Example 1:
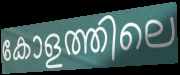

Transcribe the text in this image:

കോളത്തിലെ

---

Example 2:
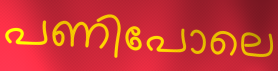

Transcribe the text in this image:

പണിപോലെ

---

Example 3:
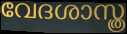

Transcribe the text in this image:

വേദശാസ്ത്ര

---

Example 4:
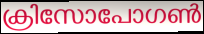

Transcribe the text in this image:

ക്രിസോപോഗൺ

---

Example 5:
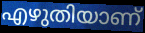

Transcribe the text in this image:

എഴുതിയാണ്